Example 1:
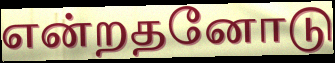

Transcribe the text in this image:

என்றதனோடு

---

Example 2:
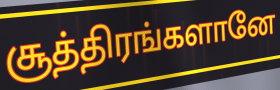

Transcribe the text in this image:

சூத்திரங்களானே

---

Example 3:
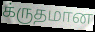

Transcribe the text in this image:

க்ருதமான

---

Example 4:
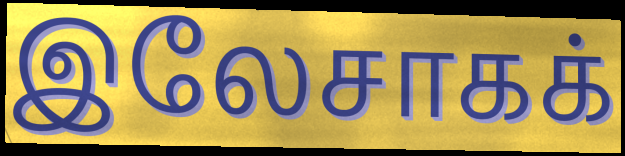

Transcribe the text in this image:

இலேசாகக்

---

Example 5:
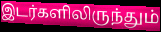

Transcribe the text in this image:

இடர்களிலிருந்தும்